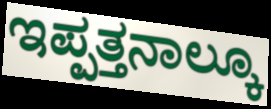
ಇಪ್ಪತ್ತನಾಲ್ಕೂ